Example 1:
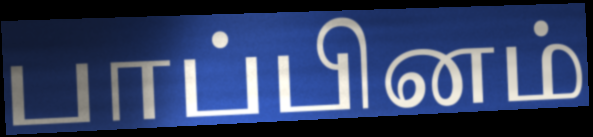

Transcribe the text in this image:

பாப்பினம்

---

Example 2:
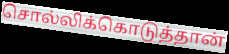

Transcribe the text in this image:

சொல்லிக்கொடுத்தான்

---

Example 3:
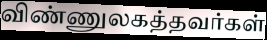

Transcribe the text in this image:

விண்ணுலகத்தவர்கள்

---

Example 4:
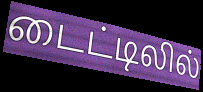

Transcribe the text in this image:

டைட்டிலில்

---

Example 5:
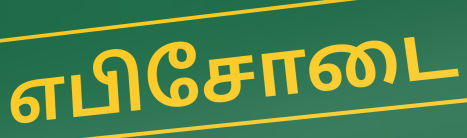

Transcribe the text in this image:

எபிசோடை